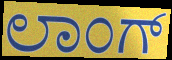
ಲಾಂಗ್